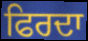
ਫਿਰਦਾ